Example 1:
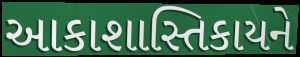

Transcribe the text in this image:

આકાશાસ્તિકાયને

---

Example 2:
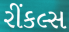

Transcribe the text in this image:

રીંકલ્સ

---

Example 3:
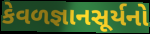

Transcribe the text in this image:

કેવળજ્ઞાનસૂર્યનો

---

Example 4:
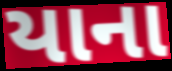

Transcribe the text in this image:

યાના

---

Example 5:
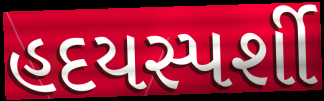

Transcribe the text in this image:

હદયસ્પર્શી